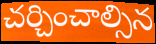
చర్చించాల్సిన